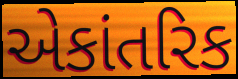
એકાંતરિક